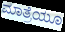
ಮಾತ್ರೆಯೂ